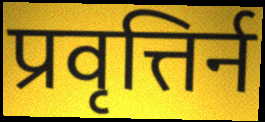
प्रवृत्तिर्न